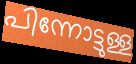
പിന്നോട്ടുള്ള